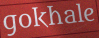
gokhale